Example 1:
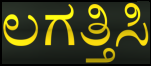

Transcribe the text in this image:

ಲಗತ್ತಿಸಿ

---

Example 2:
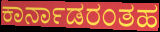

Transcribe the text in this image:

ಕಾರ್ನಾಡರಂತಹ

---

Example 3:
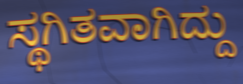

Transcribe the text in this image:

ಸ್ಥಗಿತವಾಗಿದ್ದು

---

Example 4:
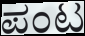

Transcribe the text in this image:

ಪಂಟ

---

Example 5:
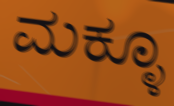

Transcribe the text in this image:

ಮಕ್ಳೂ